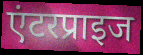
एंटरप्राइज